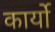
कार्यो